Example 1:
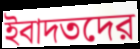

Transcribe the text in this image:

ইবাদতদের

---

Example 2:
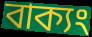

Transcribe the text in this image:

বাক্যং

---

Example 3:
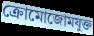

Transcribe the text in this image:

ক্রোমোজোমযুক্ত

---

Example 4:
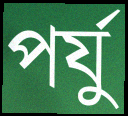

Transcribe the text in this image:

পর্যু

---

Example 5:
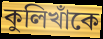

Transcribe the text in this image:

কুলিখাঁকে